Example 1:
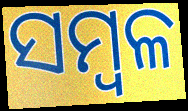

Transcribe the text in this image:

ସମ୍ବଳ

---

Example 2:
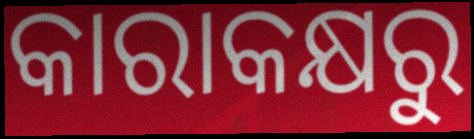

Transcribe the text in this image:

କାରାକକ୍ଷରୁ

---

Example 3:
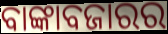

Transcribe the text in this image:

ବାଙ୍କାବଜାରର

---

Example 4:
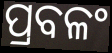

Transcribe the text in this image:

ପ୍ରବଳଂ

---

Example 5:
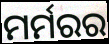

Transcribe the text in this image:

ମର୍ମରର